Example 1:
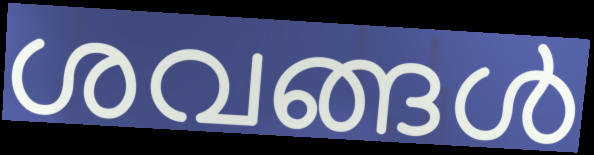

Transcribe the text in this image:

ശവങ്ങൾ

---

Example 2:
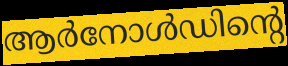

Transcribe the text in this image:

ആർനോൾഡിന്റെ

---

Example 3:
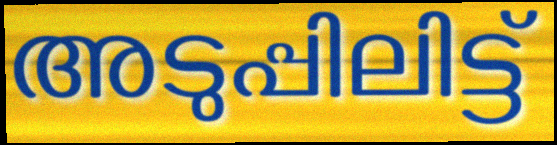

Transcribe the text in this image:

അടുപ്പിലിട്ട്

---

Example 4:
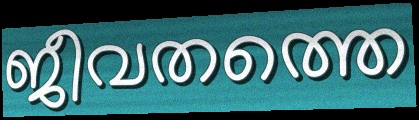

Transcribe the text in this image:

ജീവതത്തെ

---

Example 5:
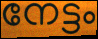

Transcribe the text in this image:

നേട്ടം